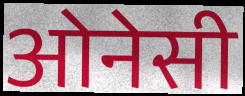
ओनेसी